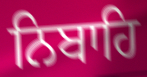
ਨਿਬਾਹਿ